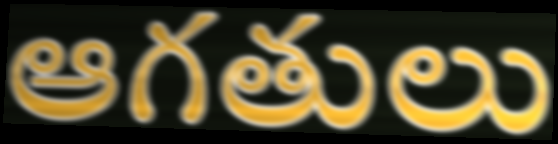
ఆగతులు